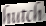
hutch